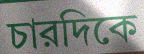
চারদিকে